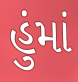
હુંમાં